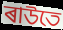
ৰাউতে